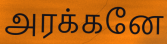
அரக்கனே